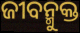
ଜୀବନ୍ମୁକ୍ତ